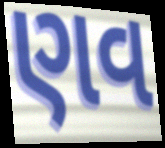
ણવ